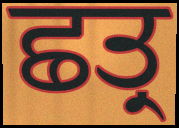
ਛਤ੍ਰ